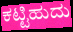
ಕಟ್ಟಿಹುದು